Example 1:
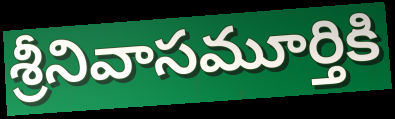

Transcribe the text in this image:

శ్రీనివాసమూర్తికి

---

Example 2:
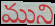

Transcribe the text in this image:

ముని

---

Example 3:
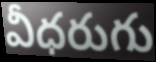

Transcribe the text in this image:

వీధరుగు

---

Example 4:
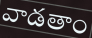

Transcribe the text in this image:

వాడతాం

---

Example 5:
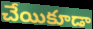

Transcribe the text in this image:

చేయికూడా